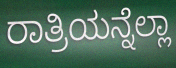
ರಾತ್ರಿಯನ್ನೆಲ್ಲಾ